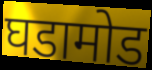
घडामोड